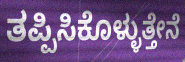
ತಪ್ಪಿಸಿಕೊಳ್ಳುತ್ತೇನೆ